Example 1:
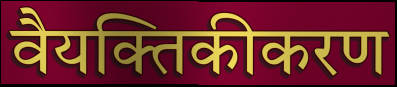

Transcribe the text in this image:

वैयक्तिकीकरण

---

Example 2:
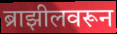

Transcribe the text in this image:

ब्राझीलवरून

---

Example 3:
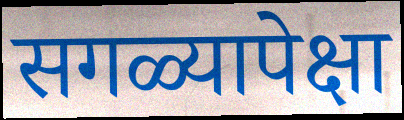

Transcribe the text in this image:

सगळ्यापेक्षा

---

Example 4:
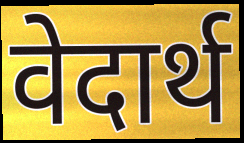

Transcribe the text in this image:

वेदार्थ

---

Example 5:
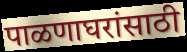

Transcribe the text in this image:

पाळणाघरांसाठी